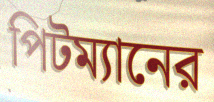
পিটম্যানের